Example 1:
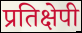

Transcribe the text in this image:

प्रतिक्षेपी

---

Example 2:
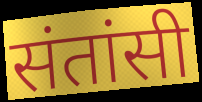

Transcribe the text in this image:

संतांसी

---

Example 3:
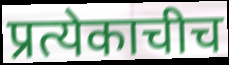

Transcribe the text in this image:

प्रत्येकाचीच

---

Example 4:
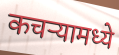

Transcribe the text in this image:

कचऱ्यामध्ये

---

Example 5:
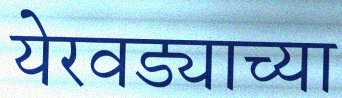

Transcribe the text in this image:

येरवड्याच्या